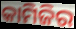
କାମିଜିର